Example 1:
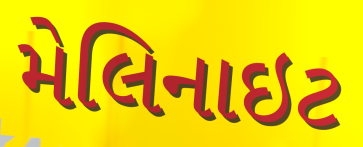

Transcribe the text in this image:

મેલિનાઇટ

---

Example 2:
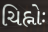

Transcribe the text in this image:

ચિહ્નોઃ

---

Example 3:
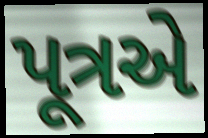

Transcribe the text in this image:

પૂત્રએ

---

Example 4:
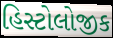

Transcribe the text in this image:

હિસ્ટોલોજીક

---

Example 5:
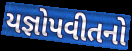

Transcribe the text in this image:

યજ્ઞોપવીતનો